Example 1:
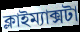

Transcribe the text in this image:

ক্লাইম্যাক্সটা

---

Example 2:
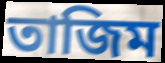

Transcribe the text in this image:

তাজিম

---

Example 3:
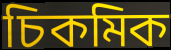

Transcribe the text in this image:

চিকমিক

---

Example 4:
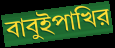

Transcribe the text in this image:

বাবুইপাখির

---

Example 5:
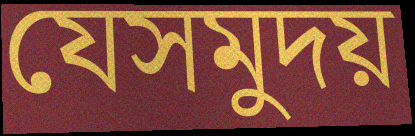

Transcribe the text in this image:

যেসমুদয়